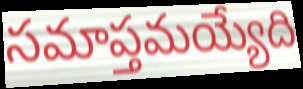
సమాప్తమయ్యేది